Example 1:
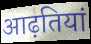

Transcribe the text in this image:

आढ़तियां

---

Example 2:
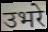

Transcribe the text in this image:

उभरे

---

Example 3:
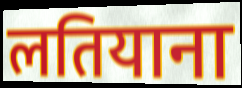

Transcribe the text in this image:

लतियाना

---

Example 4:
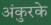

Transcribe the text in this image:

अंकुरके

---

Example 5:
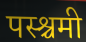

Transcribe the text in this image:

पस्श्चमी